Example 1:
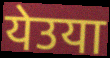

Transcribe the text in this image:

येउया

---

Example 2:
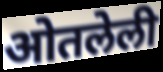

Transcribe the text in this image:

ओतलेली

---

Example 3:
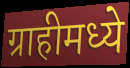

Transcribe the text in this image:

ग्राहीमध्ये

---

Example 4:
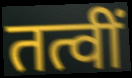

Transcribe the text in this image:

तत्वीं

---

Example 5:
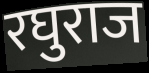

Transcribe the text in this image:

रघुराज